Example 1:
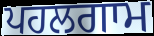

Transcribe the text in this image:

ਪਹਲਗਾਮ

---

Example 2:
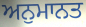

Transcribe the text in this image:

ਅਨੁਮਾਨਤ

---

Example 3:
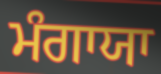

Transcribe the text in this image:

ਮੰਗਾਯਾ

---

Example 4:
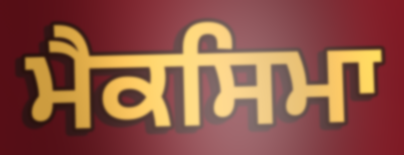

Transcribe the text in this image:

ਮੈਕਸਿਮਾ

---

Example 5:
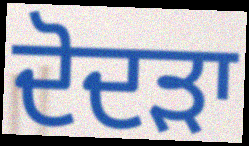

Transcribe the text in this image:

ਦੋਦੜਾ